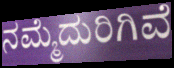
ನಮ್ಮೆದುರಿಗಿವೆ